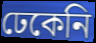
ঢেকেনি